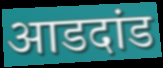
आडदांड